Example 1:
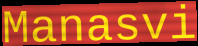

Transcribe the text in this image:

Manasvi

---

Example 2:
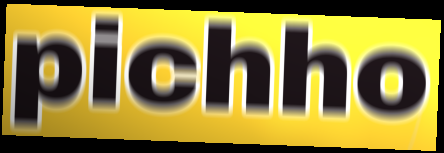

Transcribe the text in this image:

pichho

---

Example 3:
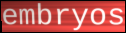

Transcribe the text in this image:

embryos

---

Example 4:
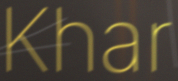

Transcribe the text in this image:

Khar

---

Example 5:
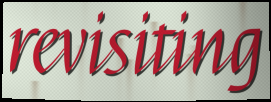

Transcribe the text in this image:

revisiting